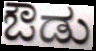
ಔಡು